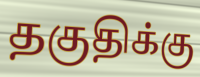
தகுதிக்கு